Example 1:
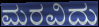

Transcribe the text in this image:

ಮರವಿದು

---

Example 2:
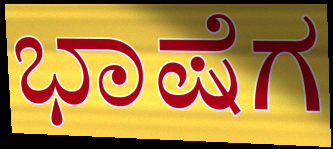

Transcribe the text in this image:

ಭಾಷೆಗ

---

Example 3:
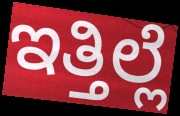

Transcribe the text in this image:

ಇತ್ತಿಲ್ಲೆ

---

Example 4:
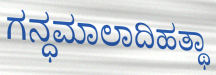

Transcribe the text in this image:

ಗನ್ಧಮಾಲಾದಿಹತ್ಥಾ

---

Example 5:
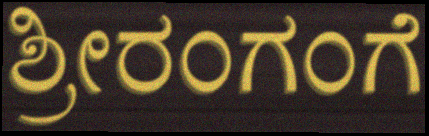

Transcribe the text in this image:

ಶ್ರೀರಂಗಂಗೆ